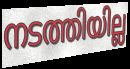
നടത്തിയില്ല